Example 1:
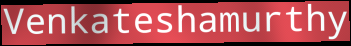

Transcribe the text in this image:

Venkateshamurthy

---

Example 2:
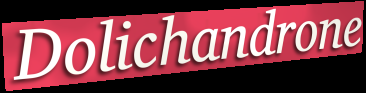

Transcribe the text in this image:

Dolichandrone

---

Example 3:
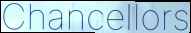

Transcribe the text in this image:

Chancellors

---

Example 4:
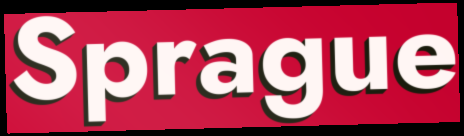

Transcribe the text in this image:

Sprague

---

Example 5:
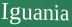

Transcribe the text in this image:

Iguania